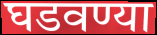
घडवण्या